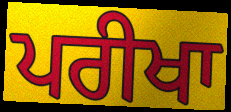
ਪਰੀਖਾ